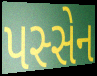
પસ્સેન